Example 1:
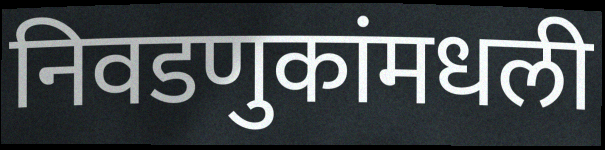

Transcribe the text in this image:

निवडणुकांमधली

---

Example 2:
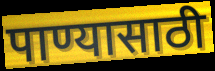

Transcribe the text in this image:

पाण्यासाठी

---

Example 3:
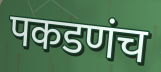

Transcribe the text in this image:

पकडणंच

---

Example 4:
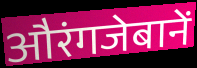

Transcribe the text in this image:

औरंगजेबानें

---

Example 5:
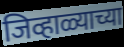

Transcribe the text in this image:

जिव्हाळ्याच्या